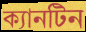
ক্যানটিন